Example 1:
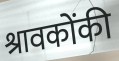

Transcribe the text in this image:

श्रावकोंकी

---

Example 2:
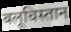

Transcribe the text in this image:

बलूचिस्तान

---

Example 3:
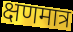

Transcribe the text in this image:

क्षणमात्र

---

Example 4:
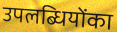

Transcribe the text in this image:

उपलब्धियोंका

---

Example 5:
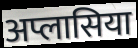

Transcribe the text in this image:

अप्लासिया